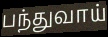
பந்துவாய்